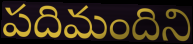
పదిమందిని